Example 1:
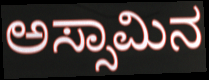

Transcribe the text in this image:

ಅಸ್ಸಾಮಿನ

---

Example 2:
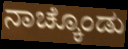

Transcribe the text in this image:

ನಾಚ್ಕೊಂಡು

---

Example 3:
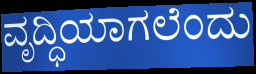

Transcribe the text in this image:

ವೃದ್ಧಿಯಾಗಲೆಂದು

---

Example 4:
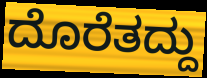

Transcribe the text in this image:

ದೊರೆತದ್ದು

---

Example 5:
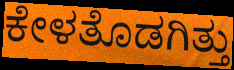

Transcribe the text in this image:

ಕೇಳತೊಡಗಿತ್ತು